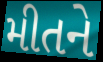
મીતને